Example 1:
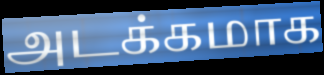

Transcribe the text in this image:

அடக்கமாக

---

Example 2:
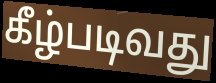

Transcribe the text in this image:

கீழ்படிவது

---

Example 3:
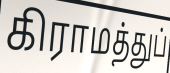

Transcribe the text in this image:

கிராமத்துப்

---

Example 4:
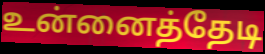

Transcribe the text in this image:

உன்னைத்தேடி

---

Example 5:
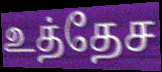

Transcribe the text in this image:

உத்தேச